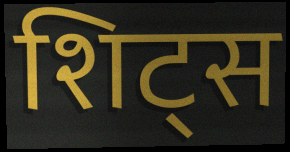
शिट्स